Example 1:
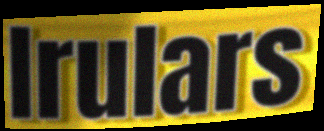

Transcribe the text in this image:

Irulars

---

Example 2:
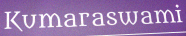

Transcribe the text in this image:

Kumaraswami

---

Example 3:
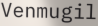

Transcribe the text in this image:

Venmugil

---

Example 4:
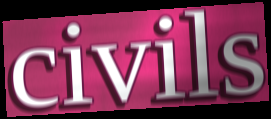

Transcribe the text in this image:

civils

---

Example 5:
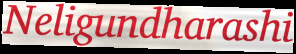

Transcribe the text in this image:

Neligundharashi